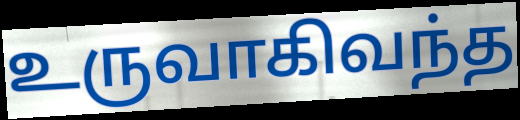
உருவாகிவந்த